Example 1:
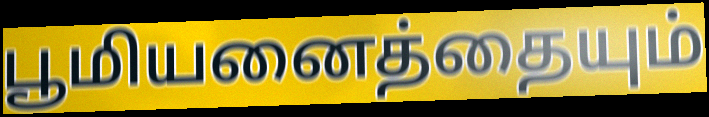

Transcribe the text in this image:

பூமியனைத்தையும்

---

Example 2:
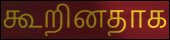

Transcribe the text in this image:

கூறினதாக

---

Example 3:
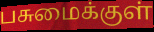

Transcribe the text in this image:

பசுமைக்குள்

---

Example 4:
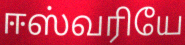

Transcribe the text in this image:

ஈஸ்வரியே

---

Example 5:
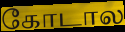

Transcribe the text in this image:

கோடால